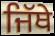
ਜਿੱਥੇ